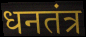
धनतंत्र